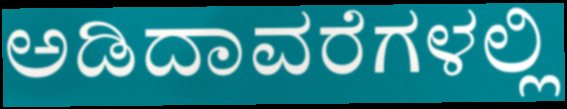
ಅಡಿದಾವರೆಗಳಲ್ಲಿ